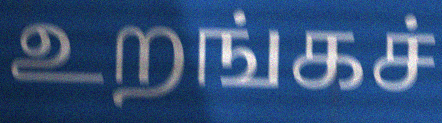
உறங்கச்